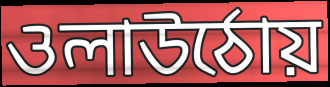
ওলাউঠোয়